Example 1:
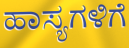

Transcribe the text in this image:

ಹಾಸ್ಯಗಳಿಗೆ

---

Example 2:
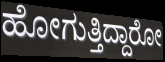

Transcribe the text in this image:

ಹೋಗುತ್ತಿದ್ದಾರೋ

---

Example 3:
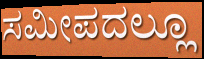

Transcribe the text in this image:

ಸಮೀಪದಲ್ಲೂ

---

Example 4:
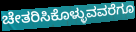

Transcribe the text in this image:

ಚೇತರಿಸಿಕೊಳ್ಳುವವರೆಗೂ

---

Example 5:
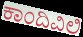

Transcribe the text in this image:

ಕಾಂದಿವಿಲಿ